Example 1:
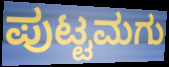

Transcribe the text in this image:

ಪುಟ್ಟಮಗು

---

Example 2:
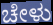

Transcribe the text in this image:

ಚೇಳು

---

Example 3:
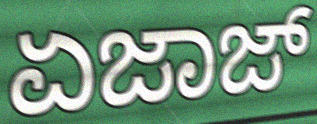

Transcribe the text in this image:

ಏಜಾಜ್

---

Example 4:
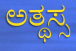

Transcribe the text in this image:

ಅತ್ಥಸ್ಸ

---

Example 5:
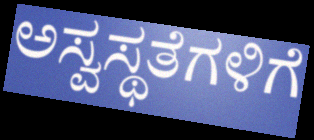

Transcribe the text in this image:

ಅಸ್ವಸ್ಥತೆಗಳಿಗೆ